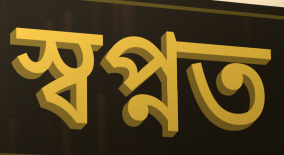
স্বপ্নত